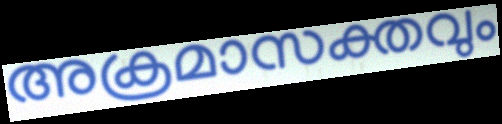
അക്രമാസക്തവും